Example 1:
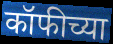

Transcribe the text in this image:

कॉफीच्या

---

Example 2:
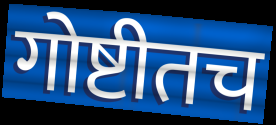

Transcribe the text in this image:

गोष्टीतच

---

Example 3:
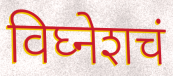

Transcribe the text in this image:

विघ्नेशचं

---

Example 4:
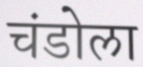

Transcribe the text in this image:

चंडोला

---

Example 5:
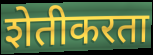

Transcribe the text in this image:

शेतीकरता